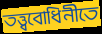
তত্ত্ববোধিনীতে